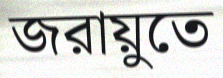
জরায়ুতে